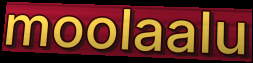
moolaalu